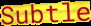
Subtle